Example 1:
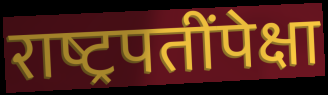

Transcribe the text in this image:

राष्ट्रपतींपेक्षा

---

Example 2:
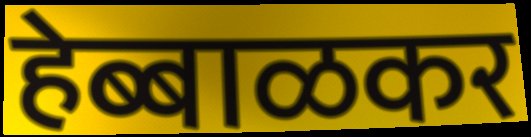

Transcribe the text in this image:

हेब्बाळकर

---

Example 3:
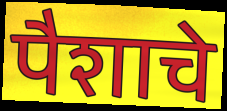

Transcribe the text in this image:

पैशाचे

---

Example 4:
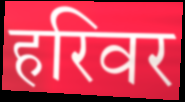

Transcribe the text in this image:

हरिवर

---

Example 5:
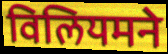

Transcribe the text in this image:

विलियमने